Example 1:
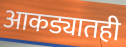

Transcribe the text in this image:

आकड्यातही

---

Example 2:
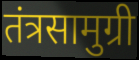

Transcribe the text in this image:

तंत्रसामुग्री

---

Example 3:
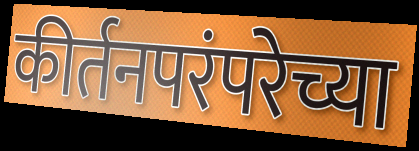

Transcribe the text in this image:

कीर्तनपरंपरेच्या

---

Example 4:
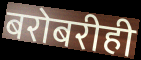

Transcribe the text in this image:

बरोबरीही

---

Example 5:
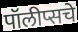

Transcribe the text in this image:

पॉलीप्सचे